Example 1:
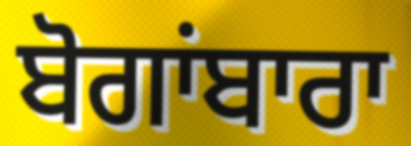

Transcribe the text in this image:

ਬੋਗਾਂਬਾਰਾ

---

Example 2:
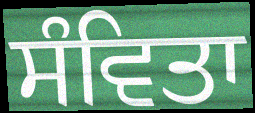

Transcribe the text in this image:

ਸੰਵਿਤਾ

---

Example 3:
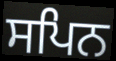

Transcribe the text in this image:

ਸਪਿਨ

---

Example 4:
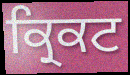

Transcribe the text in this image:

ਕ੍ਰਿਕਟ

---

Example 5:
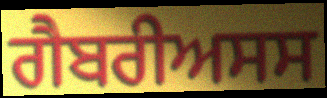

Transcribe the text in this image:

ਗੈਬਰੀਅਸਸ